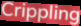
Crippling